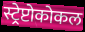
स्ट्रेप्टोकोकल